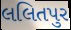
લલિતપુર